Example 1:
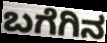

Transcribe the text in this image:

ಬಗೆಗಿನ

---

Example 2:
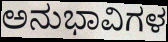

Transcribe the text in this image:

ಅನುಭಾವಿಗಳ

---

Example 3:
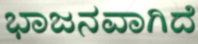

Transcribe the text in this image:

ಭಾಜನವಾಗಿದೆ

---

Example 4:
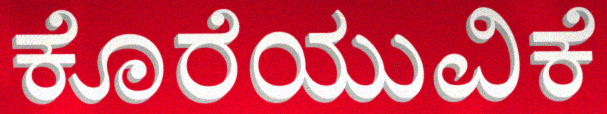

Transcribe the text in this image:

ಕೊರೆಯುವಿಕೆ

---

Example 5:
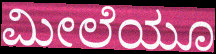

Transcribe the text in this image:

ಮೀಲೆಯೂ